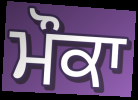
ਮੌਕਾ